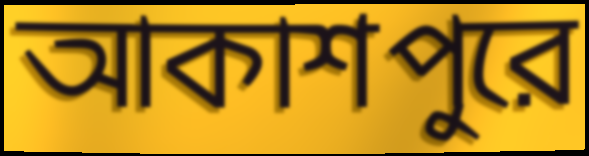
আকাশপুরে